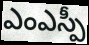
ఎంఎస్పీ